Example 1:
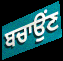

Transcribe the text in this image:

ਬਚਾਉਂਣ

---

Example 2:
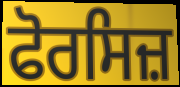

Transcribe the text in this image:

ਫੋਰਸਿਜ਼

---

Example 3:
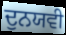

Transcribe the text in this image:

ਦੁਨਯਵੀ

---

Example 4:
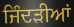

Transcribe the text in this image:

ਜਿੰਦੜੀਆਂ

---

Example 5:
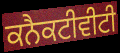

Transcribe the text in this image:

ਕਨੈਕਟੀਵੀਟੀ